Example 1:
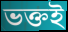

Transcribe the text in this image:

ভক্তই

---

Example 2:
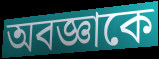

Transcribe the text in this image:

অবজ্ঞাকে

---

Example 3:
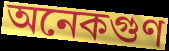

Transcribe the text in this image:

অনেকগুণ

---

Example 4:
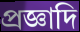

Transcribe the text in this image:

প্রজ্ঞাদি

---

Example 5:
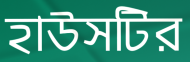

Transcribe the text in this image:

হাউসটির